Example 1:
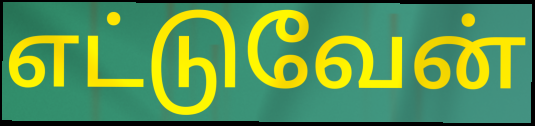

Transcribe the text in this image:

எட்டுவேன்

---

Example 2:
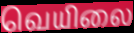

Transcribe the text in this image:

வெயிலை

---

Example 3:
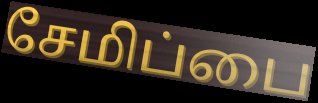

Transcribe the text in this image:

சேமிப்பை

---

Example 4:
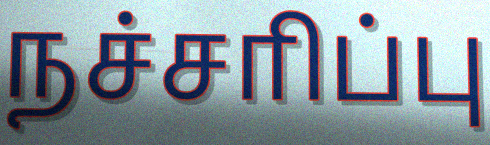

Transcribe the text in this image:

நச்சரிப்பு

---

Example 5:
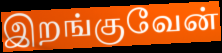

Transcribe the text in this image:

இறங்குவேன்